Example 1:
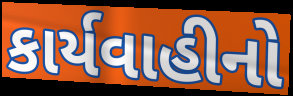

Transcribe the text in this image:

કાર્યવાહીનો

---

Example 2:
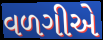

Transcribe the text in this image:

વળગીએ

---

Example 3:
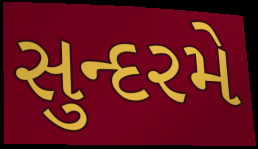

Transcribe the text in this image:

સુન્દરમે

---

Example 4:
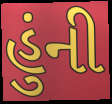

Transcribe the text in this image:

હુંની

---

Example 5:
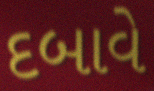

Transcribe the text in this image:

દબાવે